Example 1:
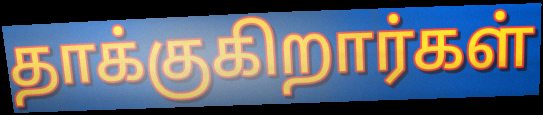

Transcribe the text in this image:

தாக்குகிறார்கள்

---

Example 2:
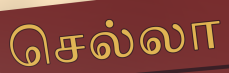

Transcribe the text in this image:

செல்லா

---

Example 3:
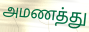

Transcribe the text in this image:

அமணத்து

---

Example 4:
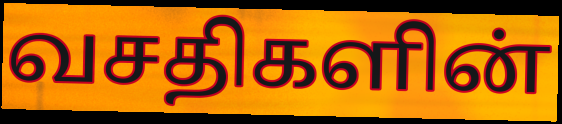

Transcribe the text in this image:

வசதிகளின்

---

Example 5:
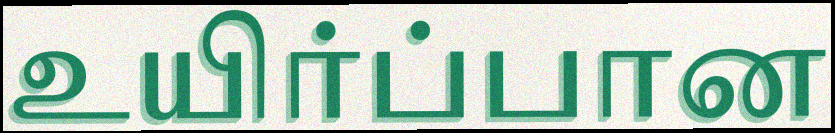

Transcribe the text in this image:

உயிர்ப்பான